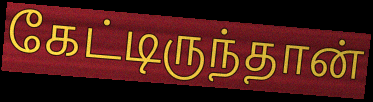
கேட்டிருந்தான்